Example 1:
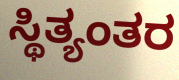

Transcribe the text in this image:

ಸ್ಥಿತ್ಯಂತರ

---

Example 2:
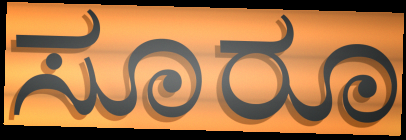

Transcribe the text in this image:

ಸೂರೂ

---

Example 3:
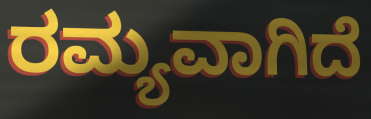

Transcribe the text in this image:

ರಮ್ಯವಾಗಿದೆ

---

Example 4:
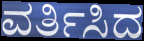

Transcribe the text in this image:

ವರ್ತಿಸಿದ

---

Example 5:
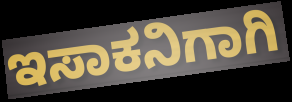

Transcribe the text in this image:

ಇಸಾಕನಿಗಾಗಿ